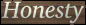
Honesty